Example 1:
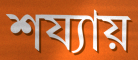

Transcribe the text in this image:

শয্যায়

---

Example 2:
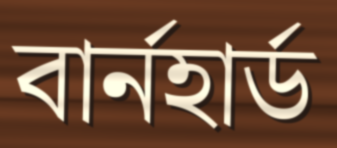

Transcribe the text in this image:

বার্নহার্ড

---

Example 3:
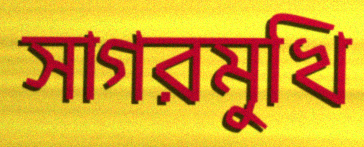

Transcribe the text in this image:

সাগরমুখি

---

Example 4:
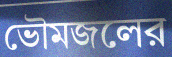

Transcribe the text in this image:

ভৌমজলের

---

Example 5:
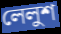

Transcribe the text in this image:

লেলুশ